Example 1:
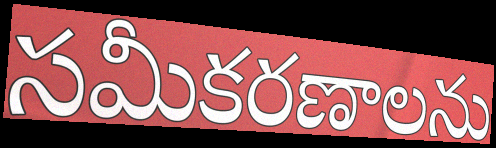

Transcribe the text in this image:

సమీకరణాలను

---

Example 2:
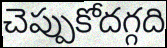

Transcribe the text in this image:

చెప్పుకోదగ్గది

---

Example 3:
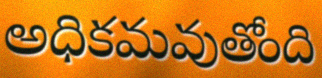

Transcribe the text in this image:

అధికమవుతోంది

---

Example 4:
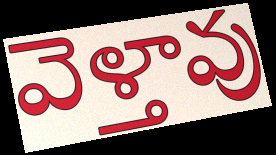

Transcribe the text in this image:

వెళ్తావు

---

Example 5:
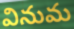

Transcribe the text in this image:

వినుమ